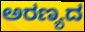
ಅರಣ್ಯದ